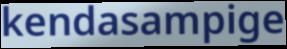
kendasampige